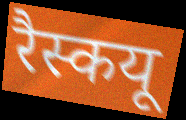
रैस्कयू